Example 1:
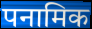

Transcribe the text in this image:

पनामिक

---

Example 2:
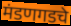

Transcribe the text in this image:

मंडणगडचे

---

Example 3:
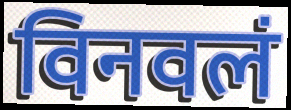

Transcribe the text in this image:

विनवलं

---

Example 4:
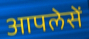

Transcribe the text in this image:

आपलेसें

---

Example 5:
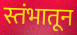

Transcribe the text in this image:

स्तंभातून